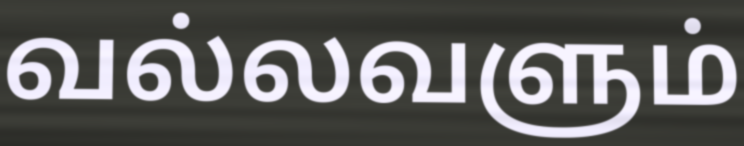
வல்லவளும்